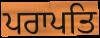
ਪਰਾਪਤਿ